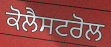
ਕੋਲੈਸਟਰੋਲ